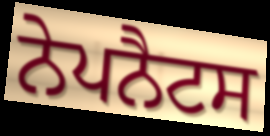
ਨੇਪਨੈਟਸ